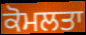
ਕੋਮਲਤਾ